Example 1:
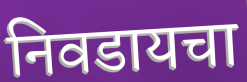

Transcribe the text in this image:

निवडायचा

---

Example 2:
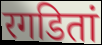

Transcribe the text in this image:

रगडितां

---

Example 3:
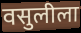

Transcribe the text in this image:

वसुलीला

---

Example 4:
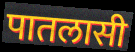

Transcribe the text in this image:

पातलासी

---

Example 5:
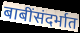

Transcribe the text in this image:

बाबींसंदर्भात